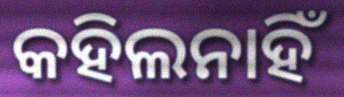
କହିଲନାହିଁ